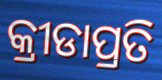
କ୍ରୀଡାପ୍ରତି